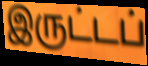
இருட்டப்